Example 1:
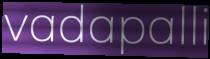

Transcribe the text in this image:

vadapalli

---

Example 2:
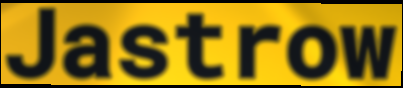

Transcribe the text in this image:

Jastrow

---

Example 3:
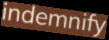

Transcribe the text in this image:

indemnify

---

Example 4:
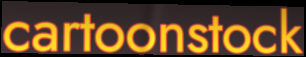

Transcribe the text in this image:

cartoonstock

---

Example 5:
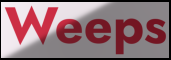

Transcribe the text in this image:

Weeps